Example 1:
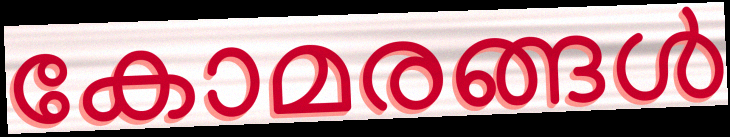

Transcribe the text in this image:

കോമരങ്ങൾ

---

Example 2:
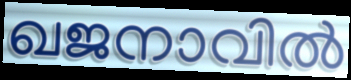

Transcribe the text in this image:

ഖജനാവിൽ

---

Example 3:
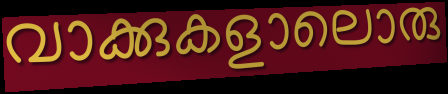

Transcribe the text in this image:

വാക്കുകളാലൊരു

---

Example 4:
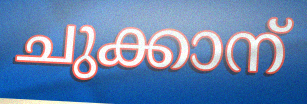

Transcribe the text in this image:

ചുക്കാന്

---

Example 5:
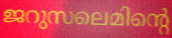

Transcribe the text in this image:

ജറുസലെമിന്റെ